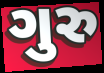
ગુરુ